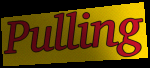
Pulling